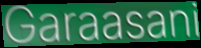
Garaasani